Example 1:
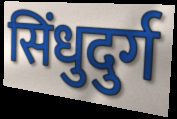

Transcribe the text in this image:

सिंधुदुर्ग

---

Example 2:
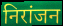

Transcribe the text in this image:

निरांजन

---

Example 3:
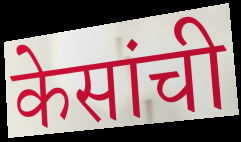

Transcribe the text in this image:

केसांची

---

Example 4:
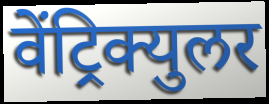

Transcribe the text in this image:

वेंट्रिक्युलर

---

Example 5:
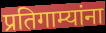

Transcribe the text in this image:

प्रतिगाम्यांना